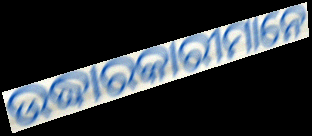
ଉଦ୍ଧାରକାରୀମାନେ